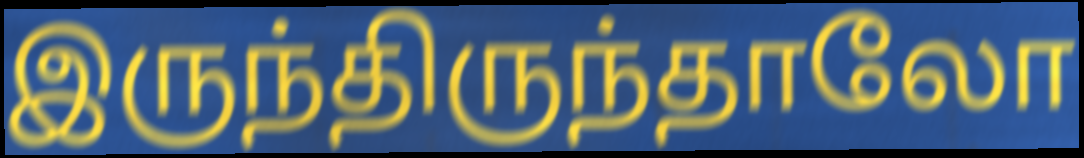
இருந்திருந்தாலோ